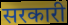
सरकारी